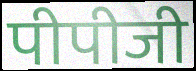
पीपीजी